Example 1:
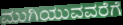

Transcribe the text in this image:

ಮುಗಿಯುವವರೆಗೆ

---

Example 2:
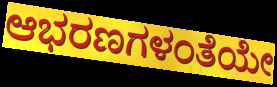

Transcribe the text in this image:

ಆಭರಣಗಳಂತೆಯೇ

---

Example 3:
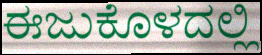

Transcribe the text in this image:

ಈಜುಕೊಳದಲ್ಲಿ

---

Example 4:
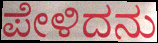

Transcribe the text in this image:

ಪೇಳಿದನು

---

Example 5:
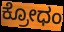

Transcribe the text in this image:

ಕ್ರೋಧಂ